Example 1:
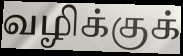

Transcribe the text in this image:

வழிக்குக்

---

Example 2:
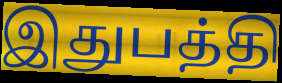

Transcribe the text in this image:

இதுபத்தி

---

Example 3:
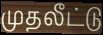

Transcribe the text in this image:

முதலீட்டு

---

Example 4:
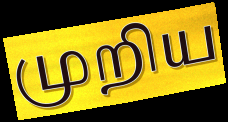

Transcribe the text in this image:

முறிய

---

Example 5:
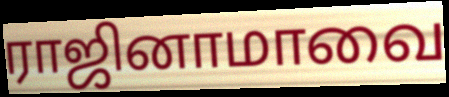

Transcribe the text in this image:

ராஜினாமாவை